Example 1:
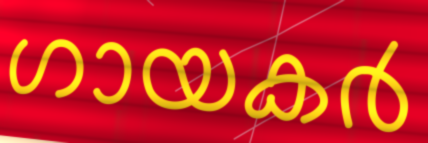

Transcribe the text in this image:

ഗായകർ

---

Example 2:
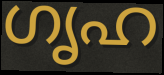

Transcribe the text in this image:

ഗൃഹ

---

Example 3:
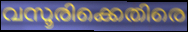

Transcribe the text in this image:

വസൂരിക്കെതിരെ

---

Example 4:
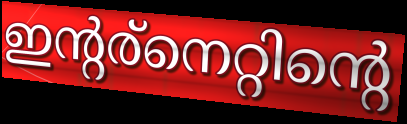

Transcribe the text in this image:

ഇന്റര്നെറ്റിന്റെ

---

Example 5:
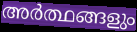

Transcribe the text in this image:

അർത്ഥങ്ങളും